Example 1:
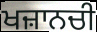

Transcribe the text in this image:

ਖਜ਼ਾਨਚੀ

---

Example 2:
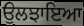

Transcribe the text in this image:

ਉਲਝਾਇਆ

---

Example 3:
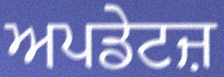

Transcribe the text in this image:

ਅਪਡੇਟਜ਼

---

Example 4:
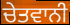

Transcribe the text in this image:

ਚੇਤਵਾਨੀ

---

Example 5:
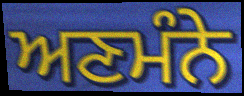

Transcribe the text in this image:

ਅਣਮੰਨੇ